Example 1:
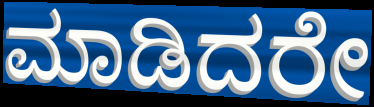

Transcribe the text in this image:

ಮಾಡಿದರೇ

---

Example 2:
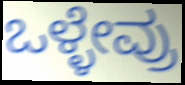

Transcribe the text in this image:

ಒಳ್ಳೇವ್ರು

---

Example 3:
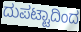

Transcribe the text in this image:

ದುಪಟ್ಟಾದಿಂದ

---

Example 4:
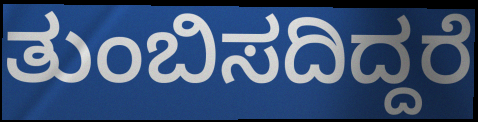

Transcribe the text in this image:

ತುಂಬಿಸದಿದ್ದರೆ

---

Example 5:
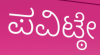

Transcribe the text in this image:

ಪವಿಟ್ಠೇ